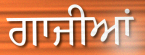
ਗਾਜੀਆਂ